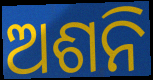
ଅଶନି